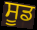
ਸੂਡ